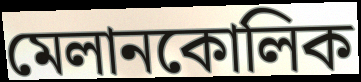
মেলানকোলিক